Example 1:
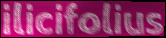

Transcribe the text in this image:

ilicifolius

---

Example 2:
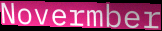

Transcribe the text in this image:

Novermber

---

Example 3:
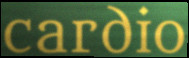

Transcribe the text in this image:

cardio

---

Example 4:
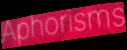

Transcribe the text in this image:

Aphorisms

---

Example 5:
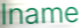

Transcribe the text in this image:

lname